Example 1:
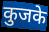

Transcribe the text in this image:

कुजके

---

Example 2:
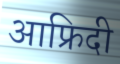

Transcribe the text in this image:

आफ्रिदी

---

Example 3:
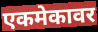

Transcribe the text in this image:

एकमेकावर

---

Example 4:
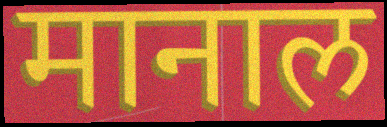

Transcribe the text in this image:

मानाल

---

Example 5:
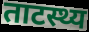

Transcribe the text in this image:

ताटस्थ्य